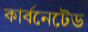
কার্বনেটেড